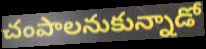
చంపాలనుకున్నాడో